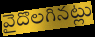
వైదొలగినట్లు